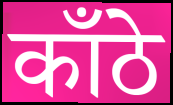
काँठे